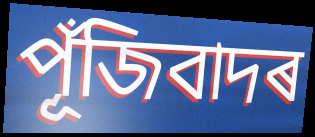
পূঁজিবাদৰ